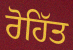
ਰੋਹਿੱਤ